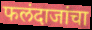
फलंदाजांचा